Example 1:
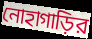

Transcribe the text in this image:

নোহাগাড়ির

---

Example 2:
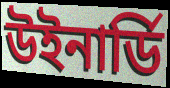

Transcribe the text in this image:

উইনার্ডি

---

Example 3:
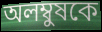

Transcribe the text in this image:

অলম্বুষকে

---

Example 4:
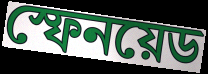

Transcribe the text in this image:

স্ফেনয়েড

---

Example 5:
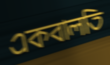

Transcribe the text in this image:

একবালতি